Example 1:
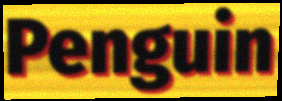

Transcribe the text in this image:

Penguin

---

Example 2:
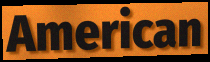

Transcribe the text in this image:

American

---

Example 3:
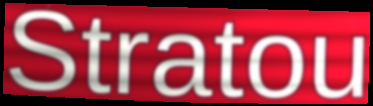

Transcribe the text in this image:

Stratou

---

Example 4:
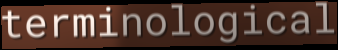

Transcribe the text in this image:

terminological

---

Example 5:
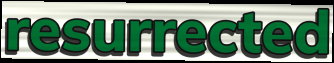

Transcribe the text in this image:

resurrected